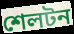
শেলটন